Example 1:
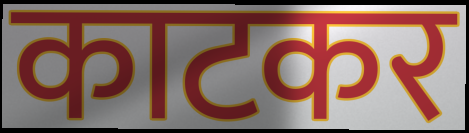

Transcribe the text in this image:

काटकर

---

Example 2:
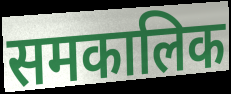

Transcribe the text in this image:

समकालिक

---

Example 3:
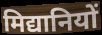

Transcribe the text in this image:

मिद्यानियों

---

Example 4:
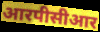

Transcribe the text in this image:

आरपीसीआर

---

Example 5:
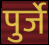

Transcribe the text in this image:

पुर्जे